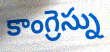
కాంగ్రెస్ను